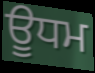
ਊਧਮ